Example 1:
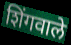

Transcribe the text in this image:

शिंगवाले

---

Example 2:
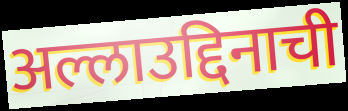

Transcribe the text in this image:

अल्लाउद्दिनाची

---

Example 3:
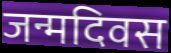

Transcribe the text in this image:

जन्मदिवस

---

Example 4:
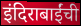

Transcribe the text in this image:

इंदिराबाईंची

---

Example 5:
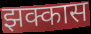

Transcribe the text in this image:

झक्कास